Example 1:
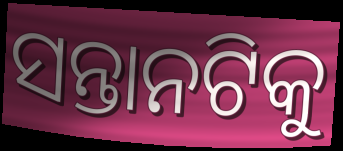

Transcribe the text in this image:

ସନ୍ତାନଟିକୁ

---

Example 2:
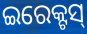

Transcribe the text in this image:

ଇରେକ୍ଟସ୍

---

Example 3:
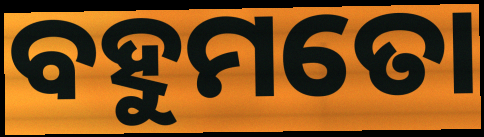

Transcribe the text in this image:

ବହୁମତୋ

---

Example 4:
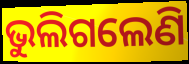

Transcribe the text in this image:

ଭୁଲିଗଲେଣି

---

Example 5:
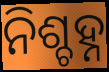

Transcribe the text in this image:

ନିଶ୍ଚହ୍ନ